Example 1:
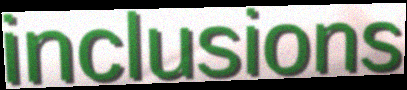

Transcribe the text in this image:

inclusions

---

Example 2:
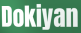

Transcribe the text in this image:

Dokiyan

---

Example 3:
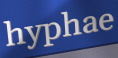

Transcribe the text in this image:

hyphae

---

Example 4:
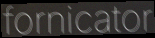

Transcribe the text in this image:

fornicator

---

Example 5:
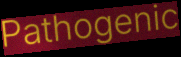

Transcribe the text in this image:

Pathogenic